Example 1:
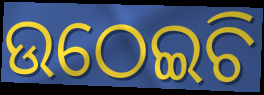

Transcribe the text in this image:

ଉଠେଇଚି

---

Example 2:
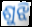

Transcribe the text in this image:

ଶୁଝି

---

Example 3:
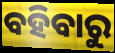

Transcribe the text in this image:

ବହିବାରୁ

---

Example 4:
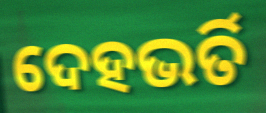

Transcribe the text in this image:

ଦେହଭର୍ତି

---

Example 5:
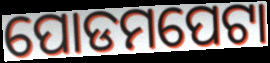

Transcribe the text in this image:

ପୋଡମପେଟା